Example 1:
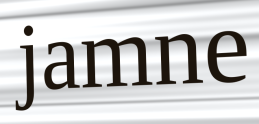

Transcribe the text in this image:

jamne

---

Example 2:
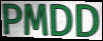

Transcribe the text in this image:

PMDD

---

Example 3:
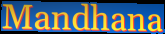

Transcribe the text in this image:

Mandhana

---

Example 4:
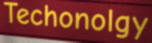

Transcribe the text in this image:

Techonolgy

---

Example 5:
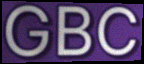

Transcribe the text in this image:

GBC